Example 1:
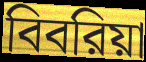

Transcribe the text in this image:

বিবরিয়া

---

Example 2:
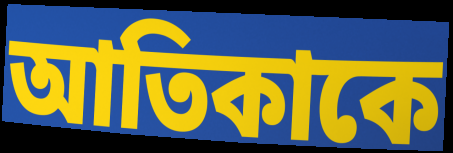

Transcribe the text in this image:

আতিকাকে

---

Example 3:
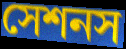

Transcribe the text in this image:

সেশনস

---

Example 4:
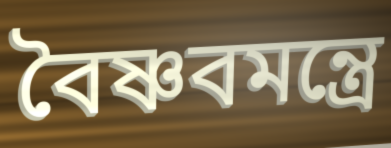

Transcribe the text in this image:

বৈষ্ণবমন্ত্রে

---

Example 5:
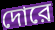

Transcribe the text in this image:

দোরে